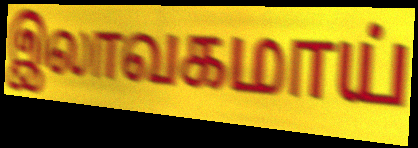
இலாவகமாய்